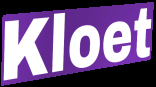
Kloet